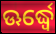
ଊର୍ଦ୍ଧ୍ୱେ